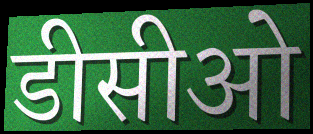
डीसीओ